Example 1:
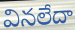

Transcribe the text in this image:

వినలేదా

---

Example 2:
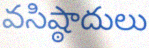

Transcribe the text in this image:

వసిష్ఠాదులు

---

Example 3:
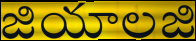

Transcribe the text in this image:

జియాలజి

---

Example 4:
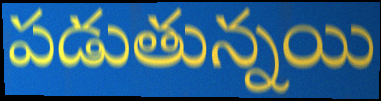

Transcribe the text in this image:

పడుతున్నయి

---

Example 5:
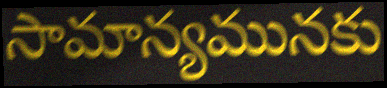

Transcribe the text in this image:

సామాన్యమునకు